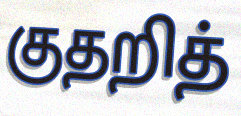
குதறித்